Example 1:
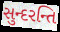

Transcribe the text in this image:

સુન્દરન્તિ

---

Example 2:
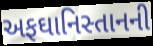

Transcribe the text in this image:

અફઘાનિસ્તાનની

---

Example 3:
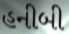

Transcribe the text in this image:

હનીબી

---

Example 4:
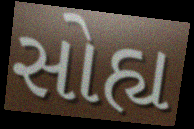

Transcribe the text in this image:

સોહ્ય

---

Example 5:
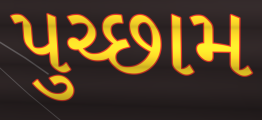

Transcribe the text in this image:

પુચ્છામ